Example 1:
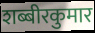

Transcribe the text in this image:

शब्बीरकुमार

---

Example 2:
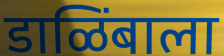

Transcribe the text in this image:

डाळिंबाला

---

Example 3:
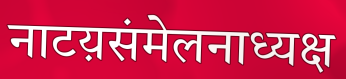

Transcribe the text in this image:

नाटय़संमेलनाध्यक्ष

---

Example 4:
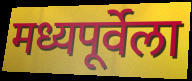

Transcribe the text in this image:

मध्यपूर्वेला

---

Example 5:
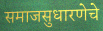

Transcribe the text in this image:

समाजसुधारणेचे